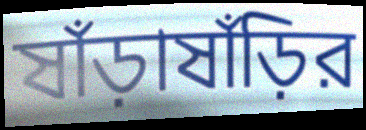
ষাঁড়াষাঁড়ির